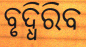
ବୃଦ୍ଧିରିବ